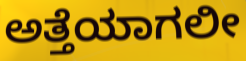
ಅತ್ತೆಯಾಗಲೀ